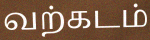
வற்கடம்